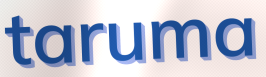
taruma